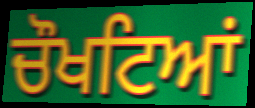
ਚੌਖਟਿਆਂ